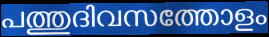
പത്തുദിവസത്തോളം